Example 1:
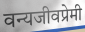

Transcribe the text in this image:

वन्यजीवप्रेमी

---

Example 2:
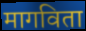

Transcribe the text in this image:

मागविता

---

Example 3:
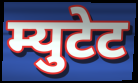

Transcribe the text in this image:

म्युटेट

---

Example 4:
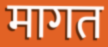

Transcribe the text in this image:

मागत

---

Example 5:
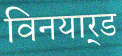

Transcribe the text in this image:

विनयार्ड